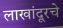
लाखांदूरचे